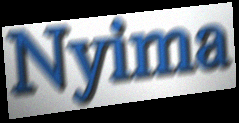
Nyima